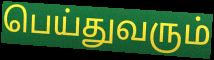
பெய்துவரும்